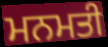
ਮਨਮਤੀ